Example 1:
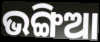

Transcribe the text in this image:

ଭଙ୍ଗିଆ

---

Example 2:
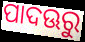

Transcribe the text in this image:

ପାଦଊରୁ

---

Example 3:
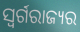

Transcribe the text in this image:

ସ୍ୱର୍ଗରାଜ୍ୟର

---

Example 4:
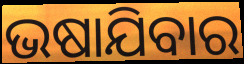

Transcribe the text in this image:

ଭଷାଯିବାର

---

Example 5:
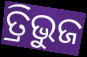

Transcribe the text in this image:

ତ୍ରିଭୁଜ